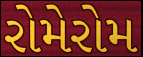
રોમેરોમ